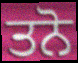
ਤਨੋ